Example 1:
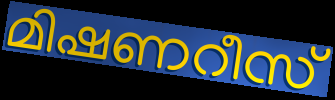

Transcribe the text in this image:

മിഷണറീസ്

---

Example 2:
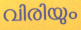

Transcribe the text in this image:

വിരിയും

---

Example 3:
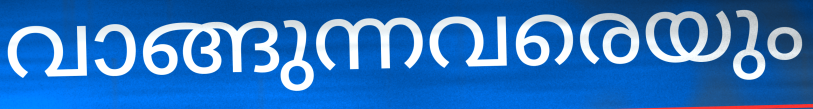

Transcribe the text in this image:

വാങ്ങുന്നവരെയും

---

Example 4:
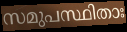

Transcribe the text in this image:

സമുപസ്ഥിതാഃ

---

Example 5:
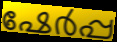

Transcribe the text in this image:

ഷേർപ്പ